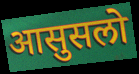
आसुसलो